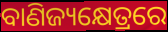
ବାଣିଜ୍ୟକ୍ଷେତ୍ରରେ